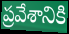
ప్రవేశానికి